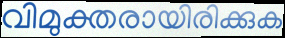
വിമുക്തരായിരിക്കുക